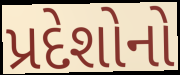
પ્રદેશોનો